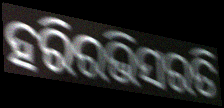
ହରିରଭିସରତି